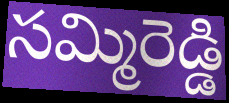
సమ్మిరెడ్డి